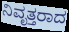
ನಿವೃತ್ತರಾದ